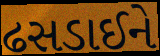
ઢસડાઈને